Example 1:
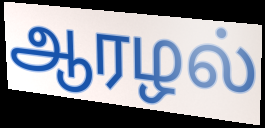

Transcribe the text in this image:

ஆரழல்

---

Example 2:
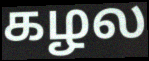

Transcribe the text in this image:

கழல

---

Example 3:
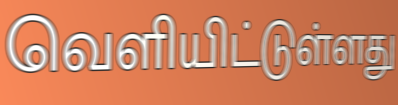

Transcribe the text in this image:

வெளியிட்டுள்ளது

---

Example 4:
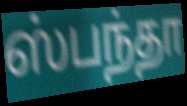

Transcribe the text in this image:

ஸ்பந்தா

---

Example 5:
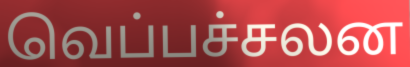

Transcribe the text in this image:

வெப்பச்சலன